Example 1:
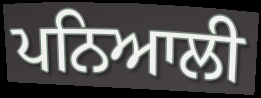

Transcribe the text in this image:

ਪਨਿਆਲੀ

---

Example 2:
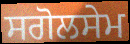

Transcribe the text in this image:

ਸਗੋਲਸੇਮ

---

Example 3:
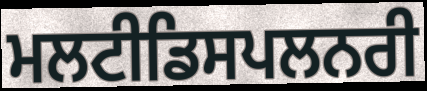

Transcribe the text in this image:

ਮਲਟੀਡਿਸਪਲਨਰੀ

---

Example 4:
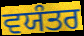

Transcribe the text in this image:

ਵਯੰਤਰ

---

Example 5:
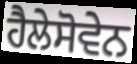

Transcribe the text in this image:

ਹੈਲੇਸੋਵੇਨ